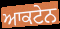
ਆਕਟੇਨ